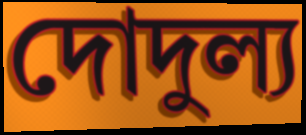
দোদুল্য